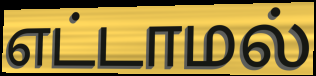
எட்டாமல்